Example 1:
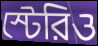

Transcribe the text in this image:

স্টেরিও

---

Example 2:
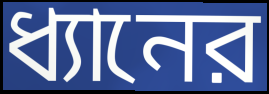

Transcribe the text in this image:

ধ্যানের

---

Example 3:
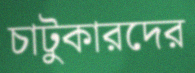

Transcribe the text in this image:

চাটুকারদের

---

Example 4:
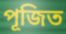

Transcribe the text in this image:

পূজিত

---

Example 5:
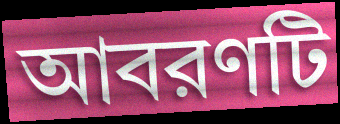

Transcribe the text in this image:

আবরণটি